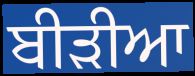
ਬੀੜੀਆ